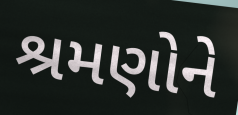
શ્રમણોને